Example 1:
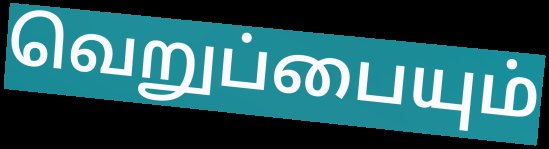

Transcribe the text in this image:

வெறுப்பையும்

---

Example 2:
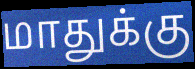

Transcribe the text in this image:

மாதுக்கு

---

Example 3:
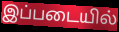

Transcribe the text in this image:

இப்படையில்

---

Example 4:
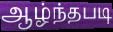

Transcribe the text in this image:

ஆழ்ந்தபடி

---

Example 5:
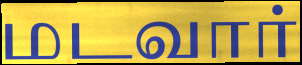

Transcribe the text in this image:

மடவார்